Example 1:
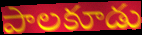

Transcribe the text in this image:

పాలకూడు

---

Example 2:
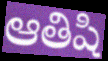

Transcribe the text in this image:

ఆతిషి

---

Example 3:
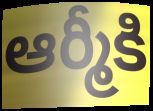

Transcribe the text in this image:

ఆర్మీకి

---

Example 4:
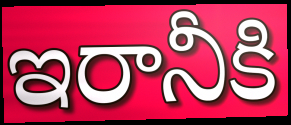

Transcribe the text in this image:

ఇరానీకి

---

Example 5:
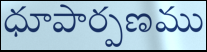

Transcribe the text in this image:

ధూపార్పణము